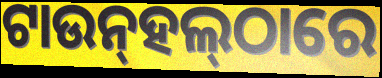
ଟାଉନ୍‌ହଲ୍‌ଠାରେ